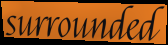
surrounded